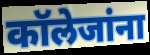
कॉलेजांना